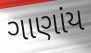
ગાણાંય